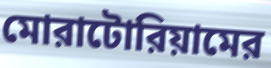
মোরাটোরিয়ামের